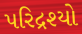
પરિદ્રશ્યો